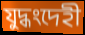
যুদ্ধংদেহী